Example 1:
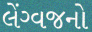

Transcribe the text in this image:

લેંગ્વજનો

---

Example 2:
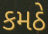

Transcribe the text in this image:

કમઠે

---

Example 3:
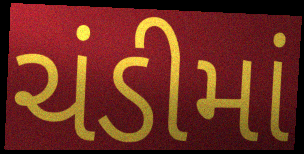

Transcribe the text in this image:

ચંડીમાં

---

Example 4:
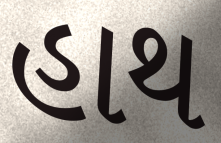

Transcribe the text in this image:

હાથ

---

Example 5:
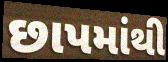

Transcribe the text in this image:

છાપમાંથી